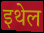
इथेल